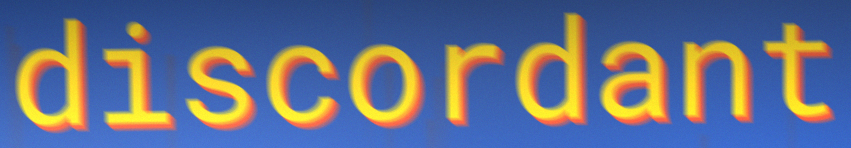
discordant